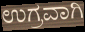
ಉಗ್ರವಾಗಿ